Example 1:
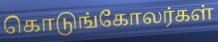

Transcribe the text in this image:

கொடுங்கோலர்கள்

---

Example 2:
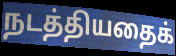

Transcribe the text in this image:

நடத்தியதைக்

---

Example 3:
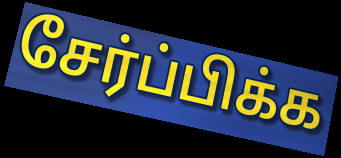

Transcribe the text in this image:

சேர்ப்பிக்க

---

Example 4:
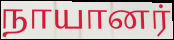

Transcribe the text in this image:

நாயானர்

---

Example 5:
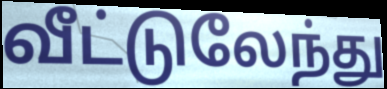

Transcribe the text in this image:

வீட்டுலேந்து